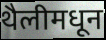
थैलीमधून